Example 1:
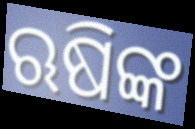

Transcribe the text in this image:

ଋଷିଙ୍କ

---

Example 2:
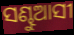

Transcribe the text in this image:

ସଣ୍ଢୁଆସୀ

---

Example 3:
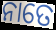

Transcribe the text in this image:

ନାତେ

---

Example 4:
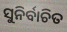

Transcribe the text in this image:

ସୁନିର୍ବାଚିତ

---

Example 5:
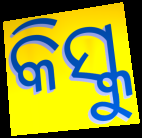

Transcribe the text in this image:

କିସ୍କୁ